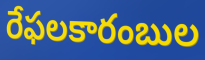
రేఫలకారంబుల